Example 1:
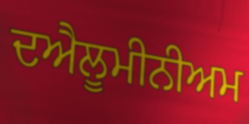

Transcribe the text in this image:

ਦਐਲੂਮੀਨੀਅਮ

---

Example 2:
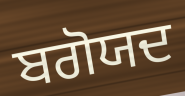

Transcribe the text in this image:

ਬਗੋਯਦ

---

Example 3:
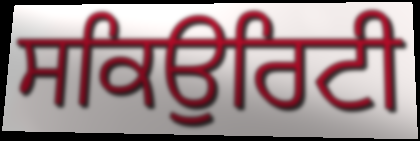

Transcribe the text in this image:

ਸਕਿਉਰਿਟੀ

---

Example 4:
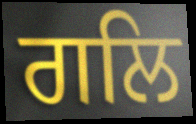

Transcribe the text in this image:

ਗਲਿ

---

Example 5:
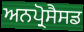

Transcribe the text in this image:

ਅਨਪ੍ਰੋਸੈਸਡ